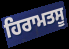
ਹਿਰਾਮਤਸੂ